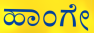
ಹಾಂಗೇ